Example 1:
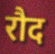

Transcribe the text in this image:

रौद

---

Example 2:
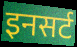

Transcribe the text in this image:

इनसर्ट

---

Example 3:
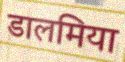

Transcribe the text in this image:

डालमिया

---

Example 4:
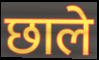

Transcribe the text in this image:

छाले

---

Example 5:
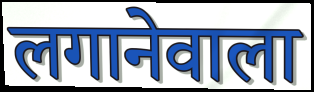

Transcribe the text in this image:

लगानेवाला